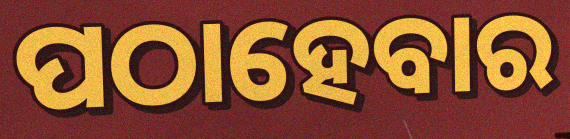
ପଠାହେବାର